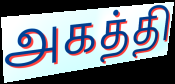
அகத்தி